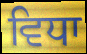
ਵਿਧਾ